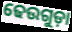
ଢେଉଗୁଡ଼ା